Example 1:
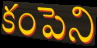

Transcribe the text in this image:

కంపెని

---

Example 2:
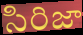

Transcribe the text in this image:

సిరిజా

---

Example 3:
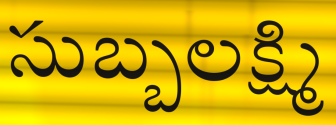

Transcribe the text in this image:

సుబ్బలక్ష్మి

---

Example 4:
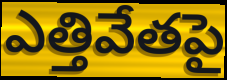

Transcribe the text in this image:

ఎత్తివేతపై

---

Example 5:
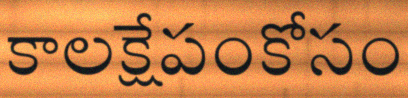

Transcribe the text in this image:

కాలక్షేపంకోసం